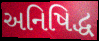
અનિષિદ્ધ